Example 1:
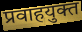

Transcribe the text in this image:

प्रवाहयुक्त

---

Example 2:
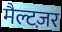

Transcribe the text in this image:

मैल्टज़र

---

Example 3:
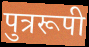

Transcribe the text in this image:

पुत्ररूपी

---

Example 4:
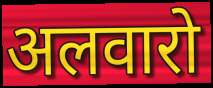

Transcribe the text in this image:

अलवारो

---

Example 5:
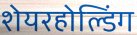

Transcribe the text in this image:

शेयरहोल्डिंग